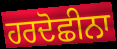
ਹਰਦੋਛੀਨਾ